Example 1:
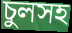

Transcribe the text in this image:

চুলসহ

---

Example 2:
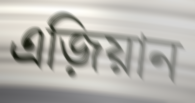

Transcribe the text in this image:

এজ়িয়ান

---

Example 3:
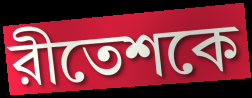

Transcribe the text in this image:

রীতেশকে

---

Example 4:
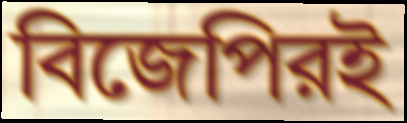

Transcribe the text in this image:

বিজেপিরই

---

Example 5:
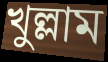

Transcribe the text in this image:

খুল্লাম